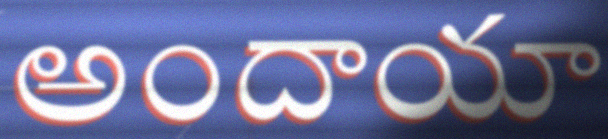
అందాయా